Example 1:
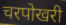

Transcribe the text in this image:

चरपोखरी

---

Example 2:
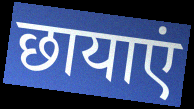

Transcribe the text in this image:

छायाएं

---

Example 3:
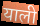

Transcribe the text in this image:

याली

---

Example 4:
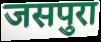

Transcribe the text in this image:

जसपुरा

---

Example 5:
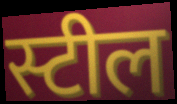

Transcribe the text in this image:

स्‍टील